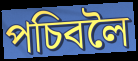
পচিবলৈ